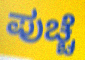
ಪುಚ್ಚೆ